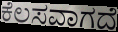
ಕೆಲಸವಾಗದೆ